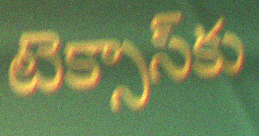
టెక్సాస్‌కు